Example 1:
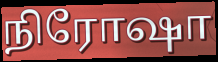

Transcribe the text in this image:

நிரோஷா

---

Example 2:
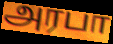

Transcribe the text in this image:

அரபா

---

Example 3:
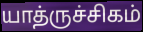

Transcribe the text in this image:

யாத்ருச்சிகம்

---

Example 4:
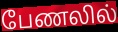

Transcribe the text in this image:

பேணலில்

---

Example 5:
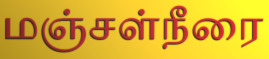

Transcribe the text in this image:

மஞ்சள்நீரை